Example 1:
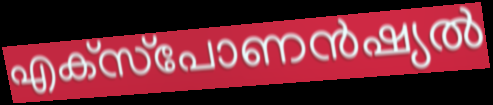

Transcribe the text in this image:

എക്‌സ്‌പോണൻഷ്യൽ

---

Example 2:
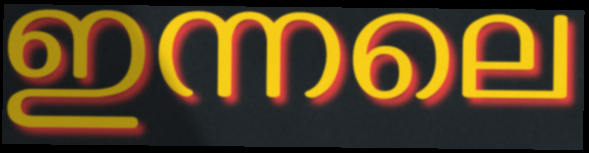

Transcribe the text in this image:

ഇന്നലെ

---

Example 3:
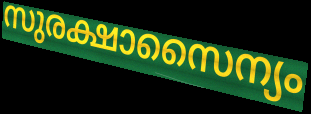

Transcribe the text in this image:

സുരക്ഷാസൈന്യം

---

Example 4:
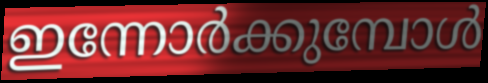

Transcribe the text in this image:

ഇന്നോർക്കുമ്പോൾ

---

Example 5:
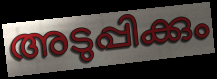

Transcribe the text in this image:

അടുപ്പിക്കും